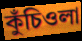
কুঁচিওলা